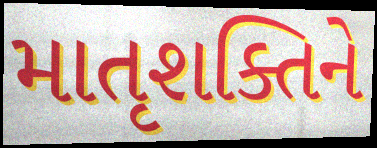
માતૃશક્તિને